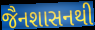
જૈનશાસનથી